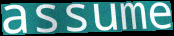
assume